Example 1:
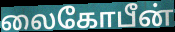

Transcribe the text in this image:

லைகோபீன்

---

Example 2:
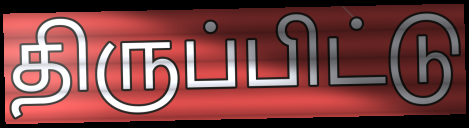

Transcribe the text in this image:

திருப்பிட்டு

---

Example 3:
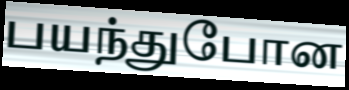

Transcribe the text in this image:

பயந்துபோன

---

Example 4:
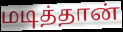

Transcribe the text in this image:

மடித்தான்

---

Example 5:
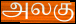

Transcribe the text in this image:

அலகு